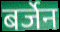
बर्जेन